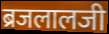
ब्रजलालजी